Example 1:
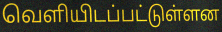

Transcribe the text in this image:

வெளியிடப்பட்டுள்ளன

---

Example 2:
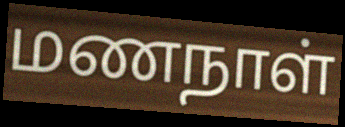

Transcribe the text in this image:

மணநாள்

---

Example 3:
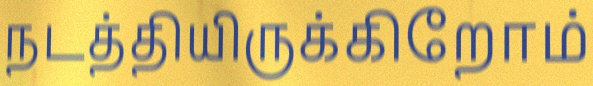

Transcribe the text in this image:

நடத்தியிருக்கிறோம்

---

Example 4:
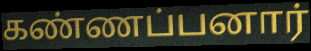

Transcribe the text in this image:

கண்ணப்பனார்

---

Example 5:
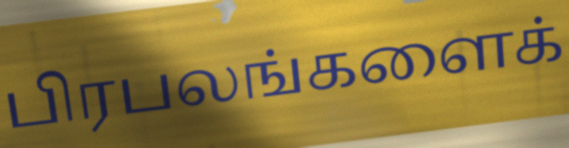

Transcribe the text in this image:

பிரபலங்களைக்